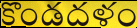
కొండదళం